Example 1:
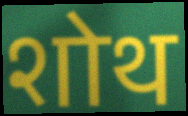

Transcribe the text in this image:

शोथ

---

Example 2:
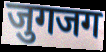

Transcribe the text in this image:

जुगजग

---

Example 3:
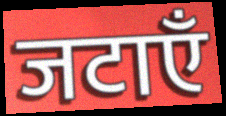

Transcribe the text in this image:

जटाएँ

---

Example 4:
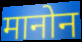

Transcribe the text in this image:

मानोन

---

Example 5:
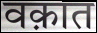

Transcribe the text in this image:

वक़ात